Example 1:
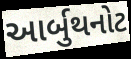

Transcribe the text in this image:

આર્બુથનોટ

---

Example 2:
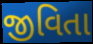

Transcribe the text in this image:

જીવિતા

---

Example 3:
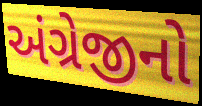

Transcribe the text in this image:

અંગ્રેજીનો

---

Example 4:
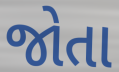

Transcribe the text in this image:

જોતા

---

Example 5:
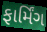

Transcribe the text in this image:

ફાર્મિંગ